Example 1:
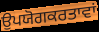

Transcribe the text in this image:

ਉਪਯੋਗਕਰਤਾਵਾਂ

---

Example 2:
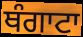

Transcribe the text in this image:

ਥੰਗਾਟਾ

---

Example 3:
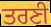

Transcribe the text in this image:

ਤਰਣੀ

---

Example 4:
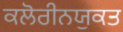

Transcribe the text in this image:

ਕਲੋਰੀਨਯੁਕਤ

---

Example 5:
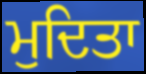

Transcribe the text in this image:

ਮੁਦਿਤਾ